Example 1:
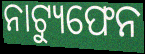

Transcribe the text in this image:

ନାଟ୍ୟୁଫେନ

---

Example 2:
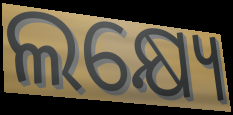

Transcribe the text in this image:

ଲକ୍ଷ୍ୟେ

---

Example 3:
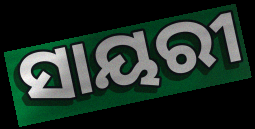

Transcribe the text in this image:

ସାୟରୀ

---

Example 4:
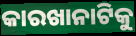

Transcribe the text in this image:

କାରଖାନାଟିକୁ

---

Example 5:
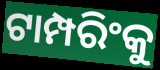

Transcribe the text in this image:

ଟାମ୍ପରିଂକୁ